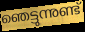
ഞെട്ടുന്നുണ്ട്